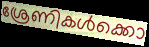
ശ്രേണികൾക്കൊ